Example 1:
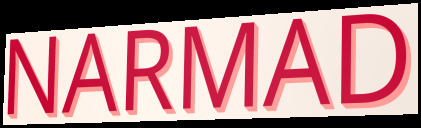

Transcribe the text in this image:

NARMAD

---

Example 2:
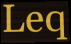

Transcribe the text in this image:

Leq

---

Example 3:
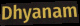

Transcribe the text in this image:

Dhyanam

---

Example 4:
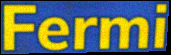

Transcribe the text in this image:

Fermi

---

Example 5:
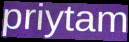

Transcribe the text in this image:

priytam